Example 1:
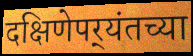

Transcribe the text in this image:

दक्षिणेपर्यंतच्या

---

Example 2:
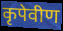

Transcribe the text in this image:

कृपेवीण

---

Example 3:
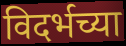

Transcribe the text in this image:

विदर्भच्या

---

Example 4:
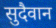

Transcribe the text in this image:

सुदैवान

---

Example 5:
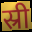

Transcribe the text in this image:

स्री